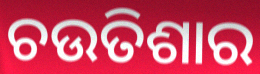
ଚଉତିଶାର